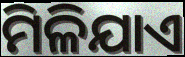
ମିଳିଯାଏ